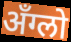
अँग्लो